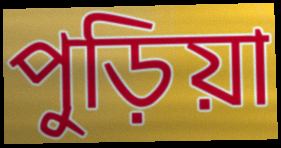
পুড়িয়া